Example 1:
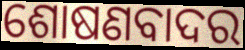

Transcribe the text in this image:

ଶୋଷଣବାଦର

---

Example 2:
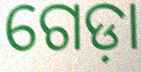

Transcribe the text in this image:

ଗେଡ଼ା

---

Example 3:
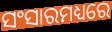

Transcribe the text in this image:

ସଂସାରମଧ୍ୟରେ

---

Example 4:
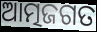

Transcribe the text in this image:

ଆତ୍ମଜଗତ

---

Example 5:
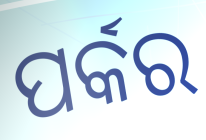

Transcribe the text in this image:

ପର୍କର